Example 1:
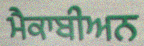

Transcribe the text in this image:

ਮੈਕਾਬੀਅਨ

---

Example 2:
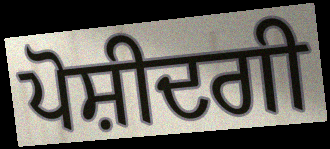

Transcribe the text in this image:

ਪੋਸ਼ੀਦਗੀ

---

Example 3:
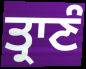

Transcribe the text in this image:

ਤ੍ਰਾਣੰ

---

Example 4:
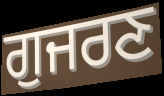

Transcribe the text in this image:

ਗੁਜਰਣ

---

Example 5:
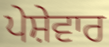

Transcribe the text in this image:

ਪੇਸ਼ੇਵਾਰ